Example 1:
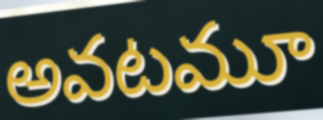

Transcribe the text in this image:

అవటమూ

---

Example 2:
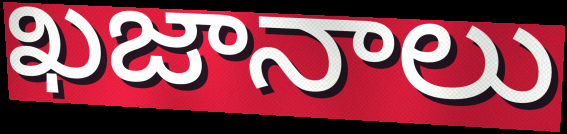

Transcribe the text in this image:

ఖజానాలు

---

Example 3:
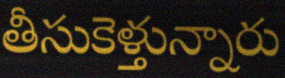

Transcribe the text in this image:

తీసుకెళ్తున్నారు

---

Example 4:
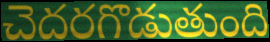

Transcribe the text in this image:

చెదరగొడుతుంది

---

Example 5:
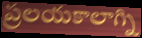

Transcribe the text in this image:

ప్రలయకాలాగ్ని